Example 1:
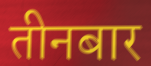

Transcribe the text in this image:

तीनबार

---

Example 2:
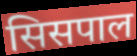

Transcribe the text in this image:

सिसपाल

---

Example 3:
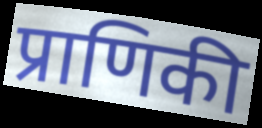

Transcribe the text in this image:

प्राणिकी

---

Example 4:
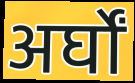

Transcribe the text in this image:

अर्घों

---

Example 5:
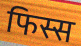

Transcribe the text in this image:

फिस्स